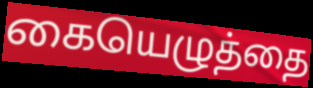
கையெழுத்தை